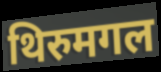
थिरुमगल